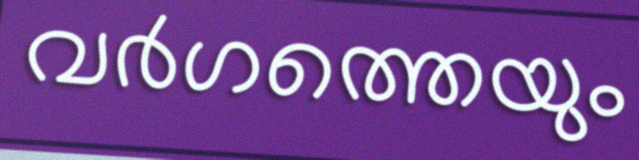
വർഗത്തെയും